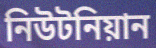
নিউটনিয়ান